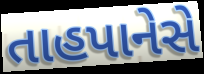
તાહપાનેસે